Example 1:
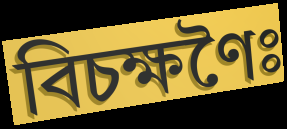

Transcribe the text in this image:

বিচক্ষণৈঃ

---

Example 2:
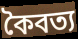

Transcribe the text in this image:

কৈবত্য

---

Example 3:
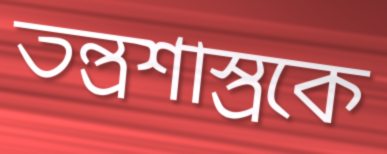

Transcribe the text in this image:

তন্ত্রশাস্ত্রকে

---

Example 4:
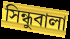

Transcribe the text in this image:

সিন্ধুবালা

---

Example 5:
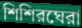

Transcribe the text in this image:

শিশিরঘেরা